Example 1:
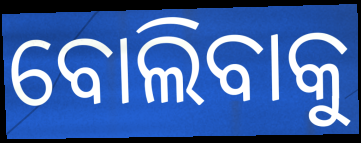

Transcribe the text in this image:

ବୋଲିବାକୁ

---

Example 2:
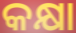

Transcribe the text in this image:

କକ୍ଷା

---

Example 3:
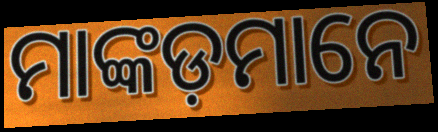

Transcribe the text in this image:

ମାଙ୍କଡ଼ମାନେ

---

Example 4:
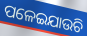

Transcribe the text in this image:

ପଳେଇଯାଉଚି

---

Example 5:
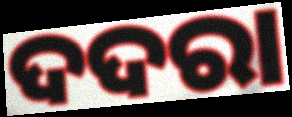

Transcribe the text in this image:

ଦଦରା